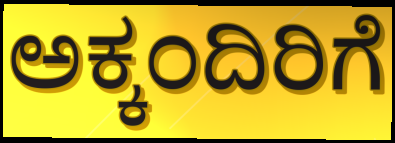
ಅಕ್ಕಂದಿರಿಗೆ